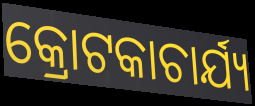
କ୍ରୋଟକାଚାର୍ଯ୍ୟ